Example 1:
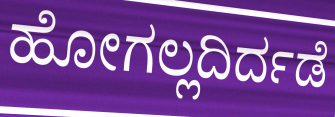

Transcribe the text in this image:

ಹೋಗಲ್ಲದಿರ್ದಡೆ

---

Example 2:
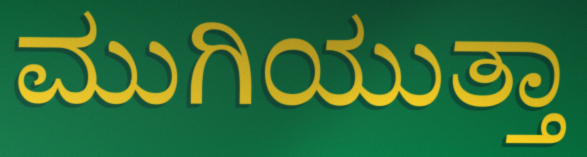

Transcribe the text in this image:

ಮುಗಿಯುತ್ತಾ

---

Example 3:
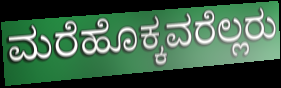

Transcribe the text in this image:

ಮರೆಹೊಕ್ಕವರೆಲ್ಲರು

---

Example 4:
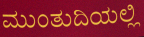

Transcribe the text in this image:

ಮುಂತುದಿಯಲ್ಲಿ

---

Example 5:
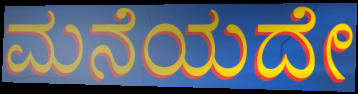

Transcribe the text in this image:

ಮನೆಯದೇ